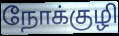
நோக்குழி